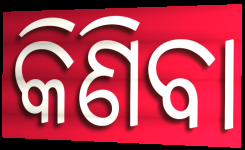
କିଣିବା